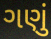
ગણું